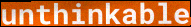
unthinkable